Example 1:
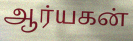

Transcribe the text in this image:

ஆர்யகன்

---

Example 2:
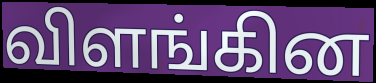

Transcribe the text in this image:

விளங்கின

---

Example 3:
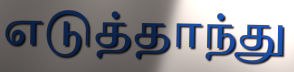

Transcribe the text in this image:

எடுத்தாந்து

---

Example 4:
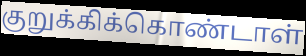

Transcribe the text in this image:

குறுக்கிக்கொண்டாள்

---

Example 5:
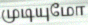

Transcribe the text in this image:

முடியுமோ